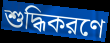
শুদ্ধিকরণে